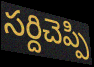
సర్దిచెప్పి